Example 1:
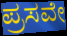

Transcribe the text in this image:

ಪ್ರಸವೇ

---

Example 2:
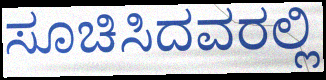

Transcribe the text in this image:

ಸೂಚಿಸಿದವರಲ್ಲಿ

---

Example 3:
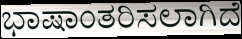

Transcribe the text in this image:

ಭಾಷಾಂತರಿಸಲಾಗಿದೆ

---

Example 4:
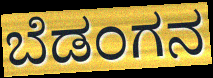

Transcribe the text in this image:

ಬೆಡಂಗನ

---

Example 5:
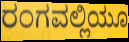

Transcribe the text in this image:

ರಂಗವಲ್ಲಿಯೂ